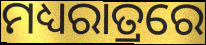
ମଧ୍ୟରାତ୍ରରେ